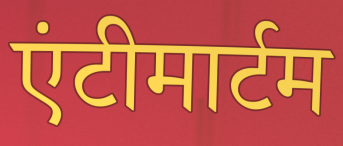
एंटीमार्टम